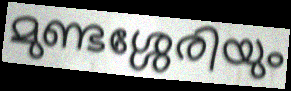
മുണ്ടശ്ശേരിയും